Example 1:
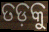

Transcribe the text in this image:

ତଡ଼କୁ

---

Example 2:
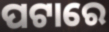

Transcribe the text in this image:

ପଟାରେ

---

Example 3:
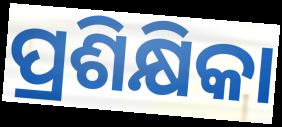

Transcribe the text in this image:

ପ୍ରଶିକ୍ଷିକା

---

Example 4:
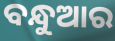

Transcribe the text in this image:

ବନ୍ଧୁଆର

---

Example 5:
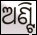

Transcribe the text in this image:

ଅଣ୍ଟି